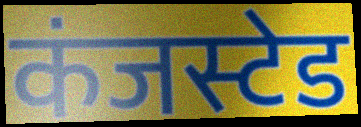
कंजस्टेड